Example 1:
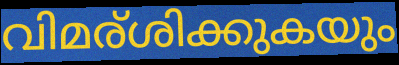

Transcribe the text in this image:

വിമര്ശിക്കുകയും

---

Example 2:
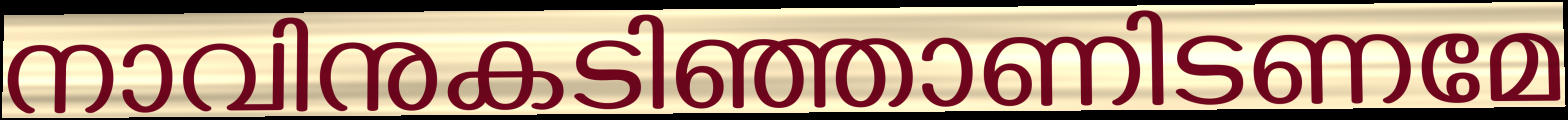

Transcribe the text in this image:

നാവിനുകടിഞ്ഞാണിടണമേ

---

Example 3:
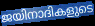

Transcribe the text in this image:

ജയിനാദികളുടെ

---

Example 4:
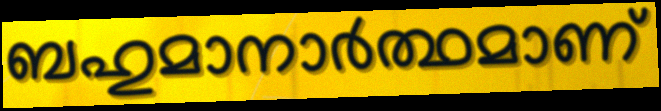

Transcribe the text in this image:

ബഹുമാനാർത്ഥമാണ്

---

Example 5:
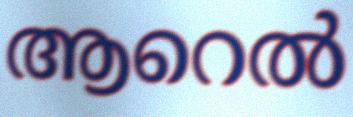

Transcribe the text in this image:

ആറെൽ